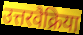
उत्तरवैक्रिया